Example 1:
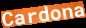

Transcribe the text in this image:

Cardona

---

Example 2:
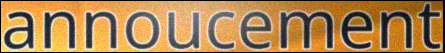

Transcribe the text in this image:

annoucement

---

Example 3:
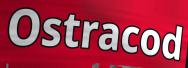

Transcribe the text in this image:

Ostracod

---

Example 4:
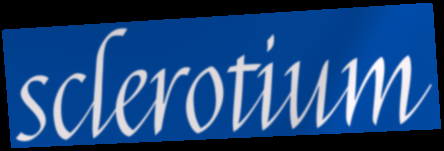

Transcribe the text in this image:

sclerotium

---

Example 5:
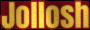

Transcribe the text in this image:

Jollosh